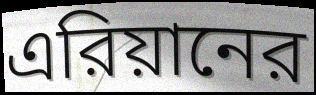
এরিয়ানের